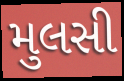
મુલસી